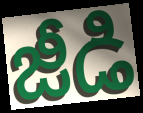
జీడి